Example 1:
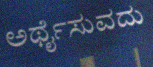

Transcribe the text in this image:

ಅರ್ಥೈಸುವದು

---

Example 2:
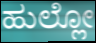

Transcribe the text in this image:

ಹುಲ್ಲೋ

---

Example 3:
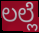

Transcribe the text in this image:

ಲಲ್ಲೆ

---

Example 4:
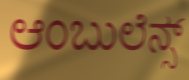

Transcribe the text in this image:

ಆಂಬುಲೆನ್ಸ್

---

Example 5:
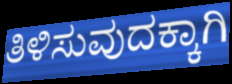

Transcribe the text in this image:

ತಿಳಿಸುವುದಕ್ಕಾಗಿ